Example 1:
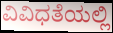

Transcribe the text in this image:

ವಿವಿಧತೆಯಲ್ಲಿ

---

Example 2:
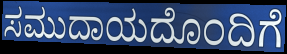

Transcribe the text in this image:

ಸಮುದಾಯದೊಂದಿಗೆ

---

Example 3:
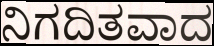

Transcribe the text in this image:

ನಿಗದಿತವಾದ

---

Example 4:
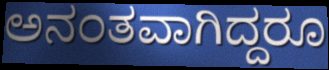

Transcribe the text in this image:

ಅನಂತವಾಗಿದ್ದರೂ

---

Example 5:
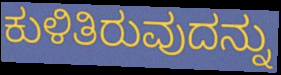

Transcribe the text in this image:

ಕುಳಿತಿರುವುದನ್ನು